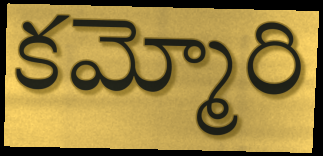
కమ్మోరి